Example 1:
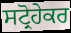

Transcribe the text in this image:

ਸਟ੍ਰੋਹੇਕਰ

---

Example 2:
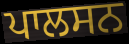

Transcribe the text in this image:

ਪਾਲਸਨ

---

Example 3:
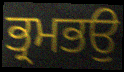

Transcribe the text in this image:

ਭ੍ਰਮਭਉ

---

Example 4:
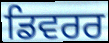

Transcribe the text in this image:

ਡਿਵਰਰ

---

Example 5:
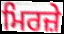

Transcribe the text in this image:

ਮਿਰਜ਼ੇ